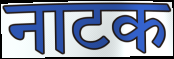
नाटक